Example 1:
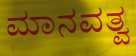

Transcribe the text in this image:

ಮಾನವತ್ವ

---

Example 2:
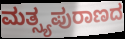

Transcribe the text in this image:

ಮತ್ಸ್ಯಪುರಾಣದ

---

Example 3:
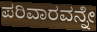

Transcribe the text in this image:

ಪರಿವಾರವನ್ನೇ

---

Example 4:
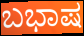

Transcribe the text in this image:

ಬಭಾಷ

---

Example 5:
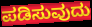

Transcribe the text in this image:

ಪಡಿಸುವುದು